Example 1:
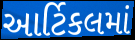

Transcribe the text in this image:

આર્ટિકલમાં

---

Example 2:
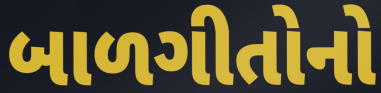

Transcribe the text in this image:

બાળગીતોનો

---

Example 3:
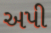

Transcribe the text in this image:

અપી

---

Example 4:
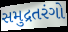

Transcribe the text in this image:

સમુદ્રતરંગો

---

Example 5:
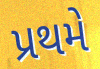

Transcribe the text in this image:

પ્રથમે